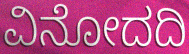
ವಿನೋದದಿ